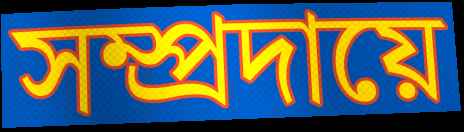
সম্প্ৰদায়ে